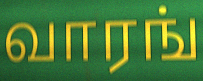
வாரங்